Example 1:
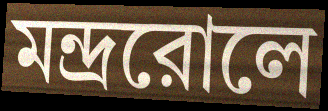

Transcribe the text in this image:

মন্দ্ররোলে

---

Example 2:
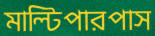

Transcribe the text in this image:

মাল্টিপারপাস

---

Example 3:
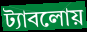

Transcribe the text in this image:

ট্যাবলোয়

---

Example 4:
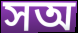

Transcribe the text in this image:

সঅ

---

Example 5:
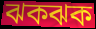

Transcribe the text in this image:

ঝকঝক